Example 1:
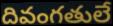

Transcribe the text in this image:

దివంగతులే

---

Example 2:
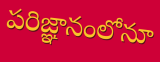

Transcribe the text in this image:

పరిజ్ఞానంలోనూ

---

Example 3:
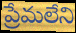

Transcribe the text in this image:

ప్రేమలేని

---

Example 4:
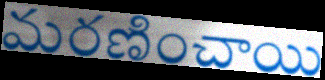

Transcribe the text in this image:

మరణించాయి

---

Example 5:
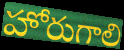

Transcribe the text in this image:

హోరుగాలి